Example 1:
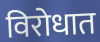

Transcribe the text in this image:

विरोधात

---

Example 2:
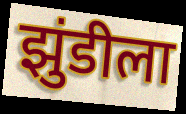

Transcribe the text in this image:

झुंडीला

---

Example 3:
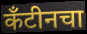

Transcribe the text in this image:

कँटीनचा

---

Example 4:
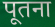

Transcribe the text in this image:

पूतना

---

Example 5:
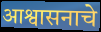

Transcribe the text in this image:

आश्वासनाचे